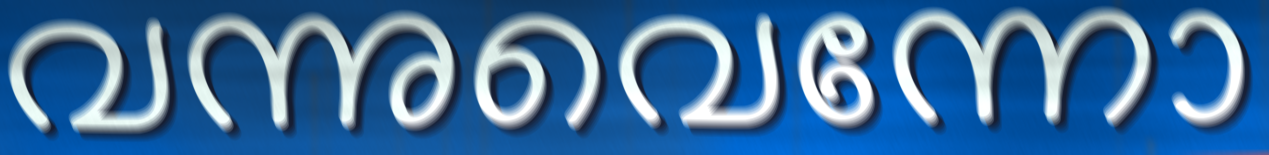
വന്നുവെന്നോ